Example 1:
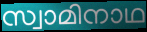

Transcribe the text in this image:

സ്വാമിനാഥ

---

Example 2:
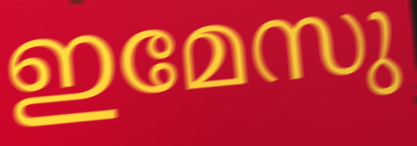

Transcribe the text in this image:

ഇമേസു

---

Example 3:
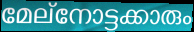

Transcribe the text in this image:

മേല്നോട്ടക്കാരും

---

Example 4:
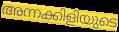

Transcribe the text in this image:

അന്നക്കിളിയുടെ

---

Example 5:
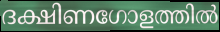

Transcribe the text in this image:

ദക്ഷിണഗോളത്തിൽ